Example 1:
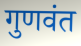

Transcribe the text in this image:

गुणवंत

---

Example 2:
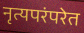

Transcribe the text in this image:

नृत्यपरंपरेत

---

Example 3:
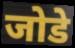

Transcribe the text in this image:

जोडे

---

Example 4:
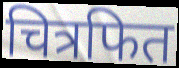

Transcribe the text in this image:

चित्रफित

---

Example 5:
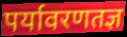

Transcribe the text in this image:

पर्यावरणतज्ञ